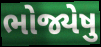
ભોજ્યેષુ